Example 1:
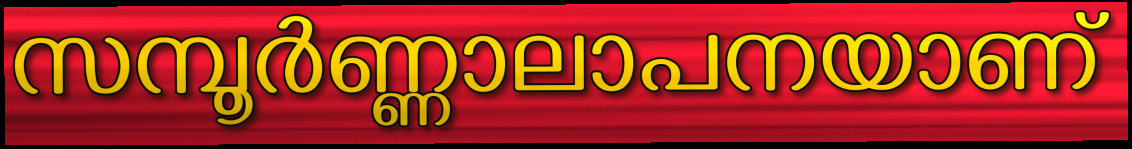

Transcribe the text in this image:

സമ്പൂർണ്ണാലാപനയാണ്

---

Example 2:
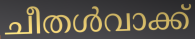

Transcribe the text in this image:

ചീതൾവാക്ക്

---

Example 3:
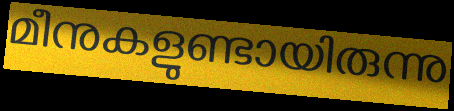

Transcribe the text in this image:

മീനുകളുണ്ടായിരുന്നു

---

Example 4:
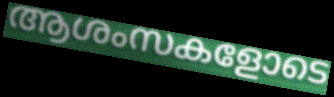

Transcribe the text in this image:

ആശംസകളോടെ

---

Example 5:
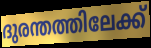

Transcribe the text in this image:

ദുരന്തത്തിലേക്ക്